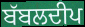
ਬੱਬਲਦੀਪ